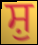
ਸ਼ੁ